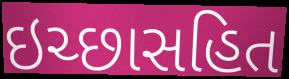
ઇચ્છાસહિત